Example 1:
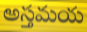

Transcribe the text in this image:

అస్తమయ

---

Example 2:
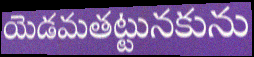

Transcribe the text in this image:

యెడమతట్టునకును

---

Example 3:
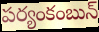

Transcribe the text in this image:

పర్యంకంబున్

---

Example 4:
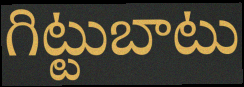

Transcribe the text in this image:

గిట్టుబాటు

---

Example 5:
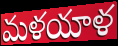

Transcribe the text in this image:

మళయాళ